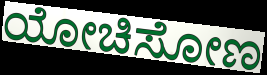
ಯೋಚಿಸೋಣ